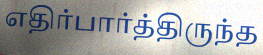
எதிர்பார்த்திருந்த